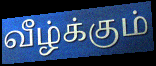
வீழ்க்கும்